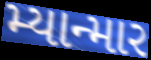
મ્યાન્માર